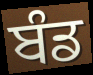
ਬੰਡ